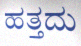
ಹತ್ತದು